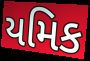
યમિક